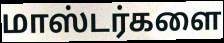
மாஸ்டர்களை